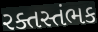
રક્તસ્તંભક